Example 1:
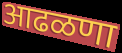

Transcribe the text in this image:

आढळणा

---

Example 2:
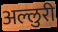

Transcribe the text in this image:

अल्लुरी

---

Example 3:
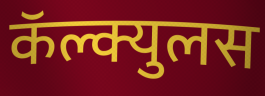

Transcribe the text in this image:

कॅल्क्युलस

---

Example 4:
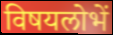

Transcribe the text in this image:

विषयलोभें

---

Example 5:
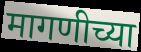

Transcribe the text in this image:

मागणीच्या